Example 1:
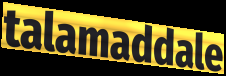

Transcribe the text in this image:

talamaddale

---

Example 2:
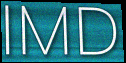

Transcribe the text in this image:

IMD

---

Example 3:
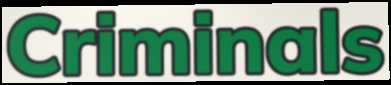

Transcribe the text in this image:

Criminals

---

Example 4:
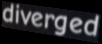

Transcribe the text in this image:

diverged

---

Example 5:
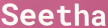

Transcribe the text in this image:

Seetha